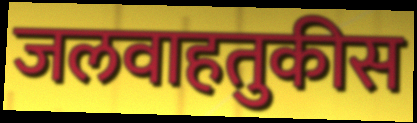
जलवाहतुकीस